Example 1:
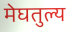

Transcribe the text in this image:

मेघतुल्य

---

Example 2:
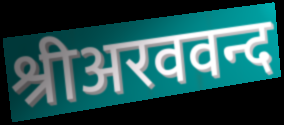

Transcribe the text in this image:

श्रीअरववन्द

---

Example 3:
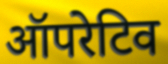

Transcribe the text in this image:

ऑपरेटिव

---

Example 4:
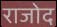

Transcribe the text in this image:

राजोद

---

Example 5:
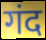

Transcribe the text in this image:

गंद